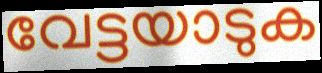
വേട്ടയാടുക